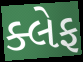
ક્લેફ